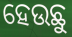
ହେଉଛୁ